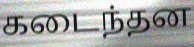
கடைந்தன